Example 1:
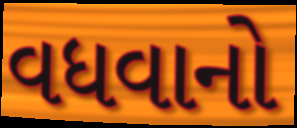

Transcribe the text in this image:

વધવાનો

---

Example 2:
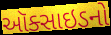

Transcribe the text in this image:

ઑક્સાઇડનો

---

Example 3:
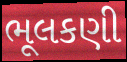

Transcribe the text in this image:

ભૂલકણી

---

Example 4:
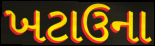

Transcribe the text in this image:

ખટાઉના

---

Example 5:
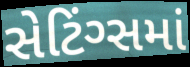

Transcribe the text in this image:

સેટિંગ્સમાં